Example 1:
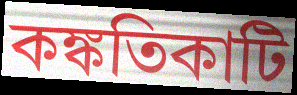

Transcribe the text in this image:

কঙ্কতিকাটি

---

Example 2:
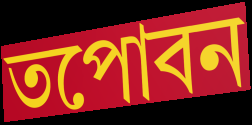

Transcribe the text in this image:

তপোবন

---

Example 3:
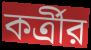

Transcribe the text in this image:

কর্ত্রীর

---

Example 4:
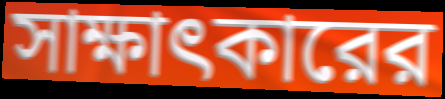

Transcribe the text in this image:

সাক্ষাৎকারের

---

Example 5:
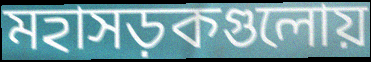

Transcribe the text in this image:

মহাসড়কগুলোয়